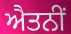
ਐਤਨੀਂ